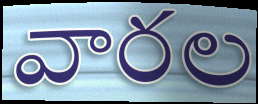
వారల